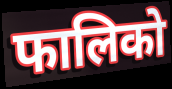
फालिको